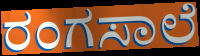
ರಂಗಸಾಲೆ